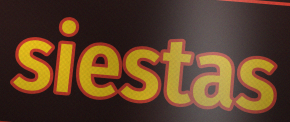
siestas